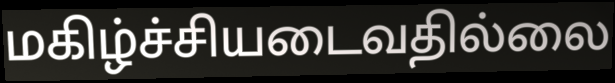
மகிழ்ச்சியடைவதில்லை